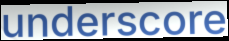
underscore